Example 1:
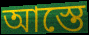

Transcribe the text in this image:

আস্তে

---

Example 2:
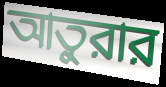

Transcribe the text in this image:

আতুরার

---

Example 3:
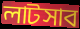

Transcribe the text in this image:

লাটসাব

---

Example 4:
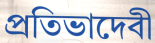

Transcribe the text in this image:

প্রতিভাদেবী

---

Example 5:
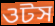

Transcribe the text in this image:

ওটস